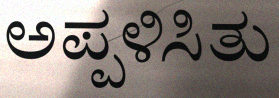
ಅಪ್ಪಳಿಸಿತು